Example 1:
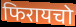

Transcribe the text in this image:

फिरायचो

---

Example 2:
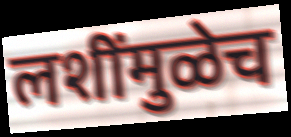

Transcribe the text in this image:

लशींमुळेच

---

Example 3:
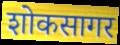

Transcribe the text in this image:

शोकसागर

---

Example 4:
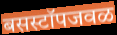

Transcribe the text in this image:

बसस्टॉपजवळ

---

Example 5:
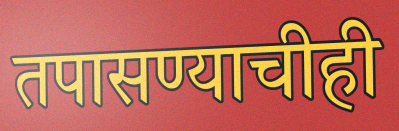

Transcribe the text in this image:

तपासण्याचीही